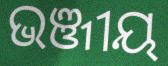
ଭଞ୍ଜୀୟ